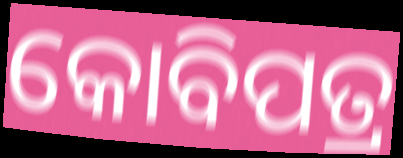
କୋବିପତ୍ର